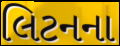
લિટનના